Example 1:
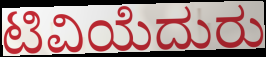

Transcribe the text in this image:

ಟಿವಿಯೆದುರು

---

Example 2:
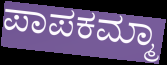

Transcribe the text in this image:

ಪಾಪಕಮ್ಮಾ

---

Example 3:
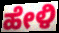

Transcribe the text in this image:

ಹೇಳಿ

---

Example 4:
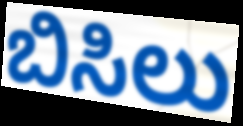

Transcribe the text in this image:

ಬಿಸಿಲು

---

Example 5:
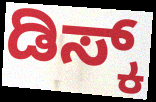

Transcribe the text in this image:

ಡಿಸ್ಕ್